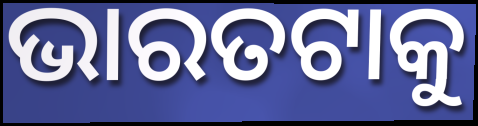
ଭାରତଟାକୁ